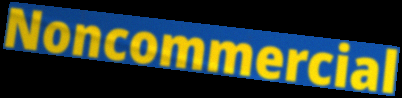
Noncommercial